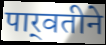
पार्वतीने